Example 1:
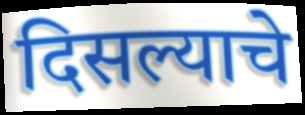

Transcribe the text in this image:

दिसल्याचे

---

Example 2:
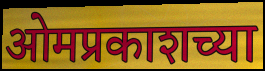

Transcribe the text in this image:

ओमप्रकाशच्या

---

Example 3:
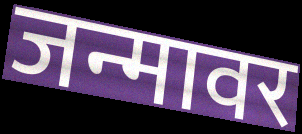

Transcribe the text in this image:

जन्मावर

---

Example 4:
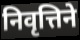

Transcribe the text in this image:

निवृत्तिने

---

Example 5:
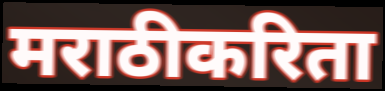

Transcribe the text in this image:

मराठीकरिता